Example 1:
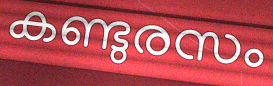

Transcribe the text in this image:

കണ്ടുരസം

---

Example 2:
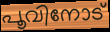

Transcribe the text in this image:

പൂവിനോട്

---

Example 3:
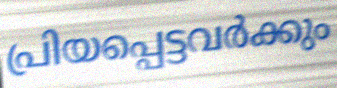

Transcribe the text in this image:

പ്രിയപ്പെട്ടവർക്കും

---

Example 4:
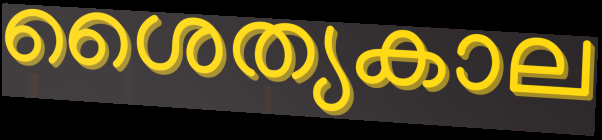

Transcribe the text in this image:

ശൈത്യകാല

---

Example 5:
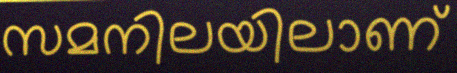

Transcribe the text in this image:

സമനിലയിലാണ്